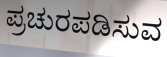
ಪ್ರಚುರಪಡಿಸುವ